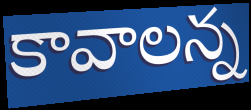
కావాలన్న